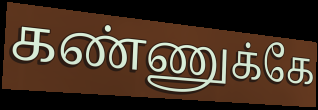
கண்ணுக்கே